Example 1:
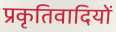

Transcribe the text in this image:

प्रकृतिवादियों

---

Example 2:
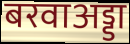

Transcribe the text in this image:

बरवाअड्डा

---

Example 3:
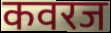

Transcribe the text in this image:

कवरज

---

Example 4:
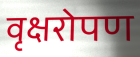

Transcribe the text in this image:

वृक्षरोपण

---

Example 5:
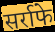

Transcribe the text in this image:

सर्राफे